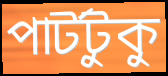
পার্টটুকু